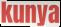
kunya